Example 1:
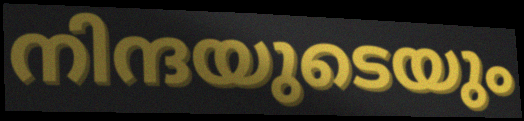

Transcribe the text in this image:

നിന്ദയുടെയും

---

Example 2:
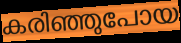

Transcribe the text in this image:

കരിഞ്ഞുപോയ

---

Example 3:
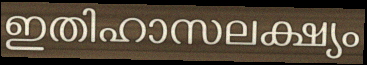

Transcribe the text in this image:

ഇതിഹാസലക്ഷ്യം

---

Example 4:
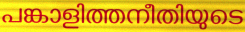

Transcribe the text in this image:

പങ്കാളിത്തനീതിയുടെ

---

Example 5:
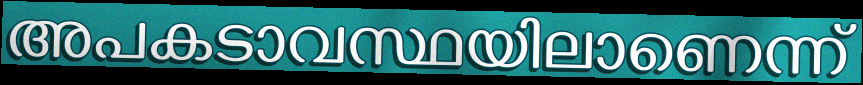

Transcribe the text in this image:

അപകടാവസ്ഥയിലാണെന്ന്